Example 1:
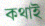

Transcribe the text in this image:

কথাই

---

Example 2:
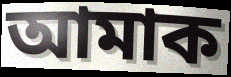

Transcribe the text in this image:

আমাক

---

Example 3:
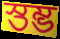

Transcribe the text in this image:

স্তম্ভ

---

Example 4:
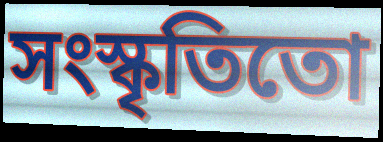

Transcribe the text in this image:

সংস্কৃতিতো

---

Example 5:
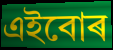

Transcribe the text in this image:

এইবোৰ